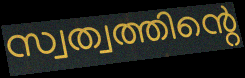
സ്വത്വത്തിന്റെ